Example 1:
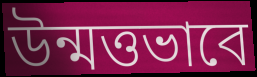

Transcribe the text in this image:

উন্মত্তভাবে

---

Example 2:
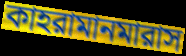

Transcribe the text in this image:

কাহরামানমারাস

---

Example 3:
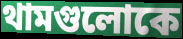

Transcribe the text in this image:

থামগুলোকে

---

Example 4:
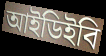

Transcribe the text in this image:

আইডিইবি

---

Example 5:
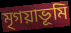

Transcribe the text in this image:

মৃগয়াভূমি